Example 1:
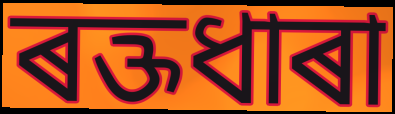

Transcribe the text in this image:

ৰক্তধাৰা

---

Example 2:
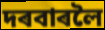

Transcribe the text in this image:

দৰবাৰলৈ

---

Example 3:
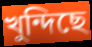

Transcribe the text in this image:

খুন্দিছে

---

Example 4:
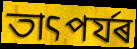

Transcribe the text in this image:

তাৎপৰ্যৰ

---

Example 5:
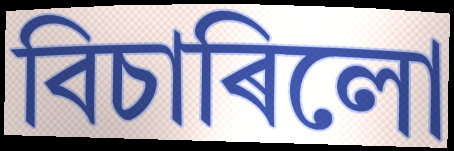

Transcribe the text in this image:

বিচাৰিলো